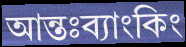
আন্তঃব্যাংকিং